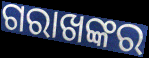
ଗରାଖଙ୍କର